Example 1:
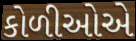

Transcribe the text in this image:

કોળીઓએ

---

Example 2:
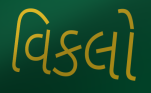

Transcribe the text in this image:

વિકલો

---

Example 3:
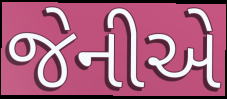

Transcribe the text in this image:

જેનીએ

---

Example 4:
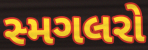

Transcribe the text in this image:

સ્મગલરો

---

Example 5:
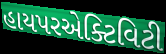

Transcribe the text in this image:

હાયપરએક્ટિવિટી